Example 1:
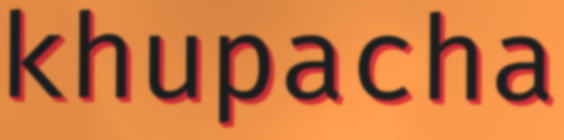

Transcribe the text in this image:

khupacha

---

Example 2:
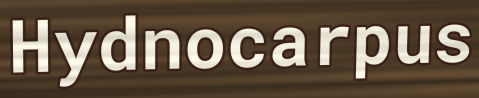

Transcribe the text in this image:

Hydnocarpus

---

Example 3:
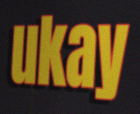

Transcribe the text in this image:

ukay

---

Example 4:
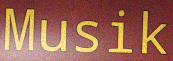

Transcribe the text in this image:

Musik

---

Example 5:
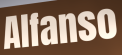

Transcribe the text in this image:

Alfanso